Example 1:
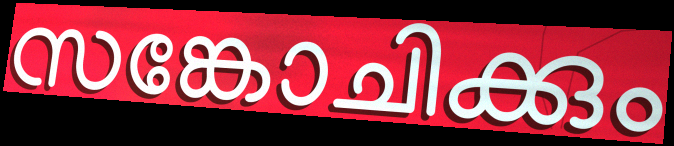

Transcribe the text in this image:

സങ്കോചിക്കും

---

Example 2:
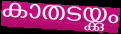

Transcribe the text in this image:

കാതടയ്ക്കും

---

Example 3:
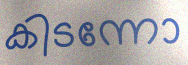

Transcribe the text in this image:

കിടന്നോ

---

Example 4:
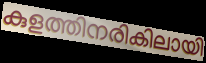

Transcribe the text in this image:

കുളത്തിനരികിലായി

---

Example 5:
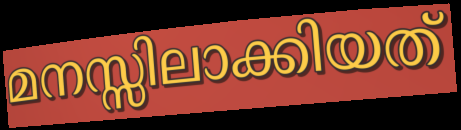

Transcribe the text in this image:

മനസ്സിലാക്കിയത്